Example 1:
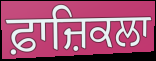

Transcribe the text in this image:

ਫ਼ਾਜ਼ਿਕਲਾ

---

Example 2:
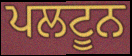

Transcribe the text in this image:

ਪਲਟੂਨ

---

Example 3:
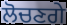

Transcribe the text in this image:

ਲੋਚਣਗੇ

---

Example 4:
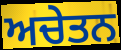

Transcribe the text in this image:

ਅਚੇਤਨ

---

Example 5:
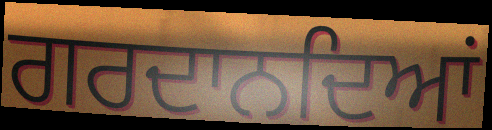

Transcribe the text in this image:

ਗਰਦਾਨਦਿਆਂ